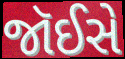
જૉઈસે